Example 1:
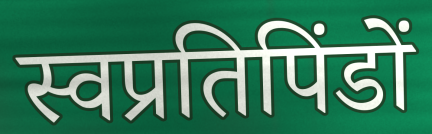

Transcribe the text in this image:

स्वप्रतिपिंडों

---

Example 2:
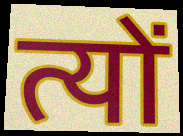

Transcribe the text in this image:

त्यों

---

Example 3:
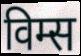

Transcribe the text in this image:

विम्स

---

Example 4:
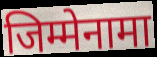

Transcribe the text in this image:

जिम्मेनामा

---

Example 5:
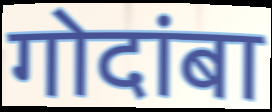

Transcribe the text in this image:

गोदांबा